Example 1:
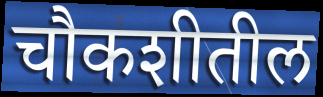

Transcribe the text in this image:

चौकशीतील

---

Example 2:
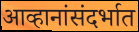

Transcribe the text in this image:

आव्हानांसंदर्भात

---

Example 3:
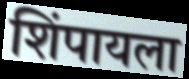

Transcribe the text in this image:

शिंपायला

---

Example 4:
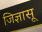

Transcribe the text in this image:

जिज्ञासू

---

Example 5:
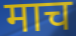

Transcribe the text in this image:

माच